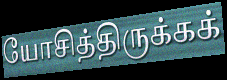
யோசித்திருக்கக்